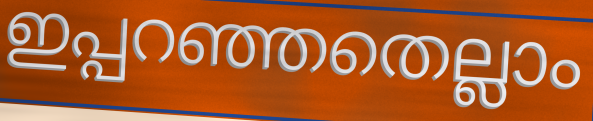
ഇപ്പറഞ്ഞതെല്ലാം